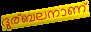
ദുര്ബലനാണ്